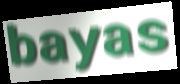
bayas